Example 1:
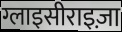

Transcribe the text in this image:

ग्लाइसीराइज़ा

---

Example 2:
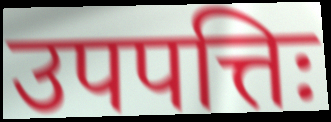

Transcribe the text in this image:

उपपत्तिः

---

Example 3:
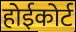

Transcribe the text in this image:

होईकोर्ट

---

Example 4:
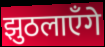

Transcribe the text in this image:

झुठलाएँगे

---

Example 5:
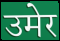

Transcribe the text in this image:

उमेर